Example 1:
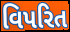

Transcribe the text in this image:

વિપરિત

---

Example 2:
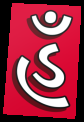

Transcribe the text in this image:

હઁ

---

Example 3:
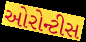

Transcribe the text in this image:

ઓરોન્ટીસ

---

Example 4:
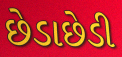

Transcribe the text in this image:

છેડાછેડી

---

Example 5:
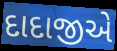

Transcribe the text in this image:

દાદાજીએ